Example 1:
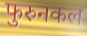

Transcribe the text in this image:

फुरुनकल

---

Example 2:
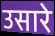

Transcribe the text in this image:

उसारे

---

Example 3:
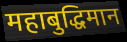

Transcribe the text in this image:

महाबुद्धिमान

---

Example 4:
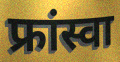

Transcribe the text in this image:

फ्रांस्वा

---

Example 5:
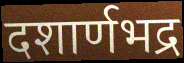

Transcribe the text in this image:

दशार्णभद्र